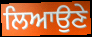
ਲਿਆਉਣੇ